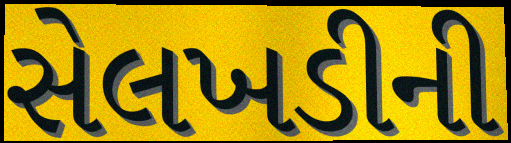
સેલખડીની